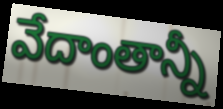
వేదాంతాన్నీ